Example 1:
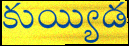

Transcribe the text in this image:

కుయ్యిడ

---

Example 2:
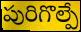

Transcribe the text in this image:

పురిగొల్పే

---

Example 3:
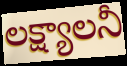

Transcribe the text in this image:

లక్ష్యాలనీ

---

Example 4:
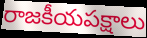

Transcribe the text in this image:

రాజకీయపక్షాలు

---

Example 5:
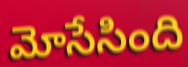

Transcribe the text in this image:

మోసేసింది